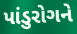
પાંડુરોગને